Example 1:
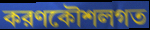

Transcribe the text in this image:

করণকৌশলগত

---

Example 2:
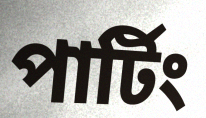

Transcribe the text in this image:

পার্টিং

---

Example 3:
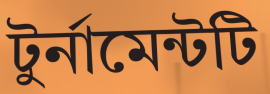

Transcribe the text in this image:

টুর্নামেন্টটি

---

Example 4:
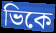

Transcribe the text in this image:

ভিকে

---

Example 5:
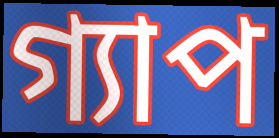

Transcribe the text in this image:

গ্যাপ